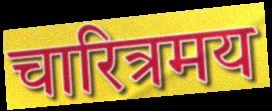
चारित्रमय